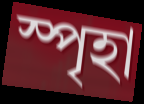
স্পৃহা